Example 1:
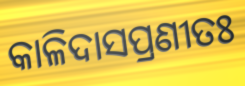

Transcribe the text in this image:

କାଳିଦାସପ୍ରଣୀତଃ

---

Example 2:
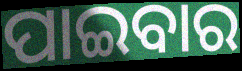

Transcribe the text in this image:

ପାଇବାର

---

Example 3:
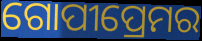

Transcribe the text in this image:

ଗୋପୀପ୍ରେମର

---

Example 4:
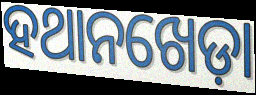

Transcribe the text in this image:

ହଥାନଖେଡ଼ା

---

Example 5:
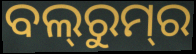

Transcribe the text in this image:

ବଲ୍‍ରୁମ୍‌ର